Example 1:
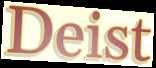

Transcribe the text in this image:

Deist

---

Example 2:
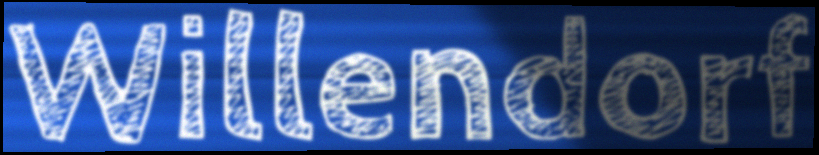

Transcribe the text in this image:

Willendorf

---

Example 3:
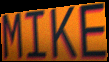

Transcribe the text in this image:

MIKE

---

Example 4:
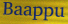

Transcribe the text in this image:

Baappu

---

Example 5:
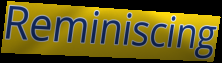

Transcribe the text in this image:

Reminiscing